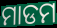
ମାଡମ